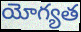
యోగ్యత